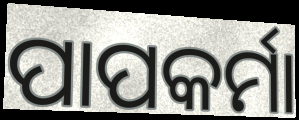
ପାପକର୍ମା